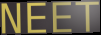
NEET